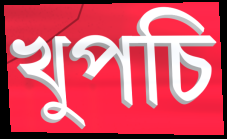
খুপচি